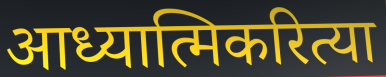
आध्यात्मिकरित्या